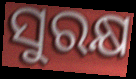
ସୁରକ୍ଷ